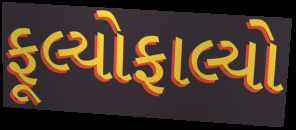
ફૂલ્યોફાલ્યો